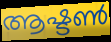
ആഷ്ടൺ